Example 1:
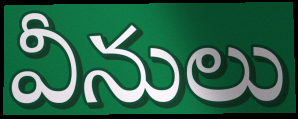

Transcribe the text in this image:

వీనులు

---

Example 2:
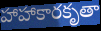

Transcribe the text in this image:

హాహాకారకృతా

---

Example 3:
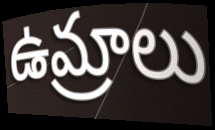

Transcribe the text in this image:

ఉమ్రాలు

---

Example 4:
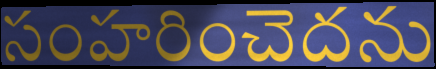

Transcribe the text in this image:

సంహరించెదను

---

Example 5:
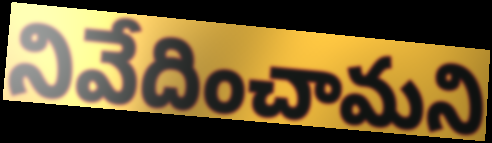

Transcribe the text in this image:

నివేదించామని